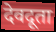
देवदूता